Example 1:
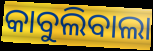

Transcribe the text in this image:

କାବୁଲିବାଲା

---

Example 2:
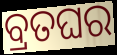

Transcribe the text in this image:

ବ୍ରତଘର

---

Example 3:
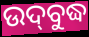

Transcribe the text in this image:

ଉଦ୍‍ବୁଦ୍ଧ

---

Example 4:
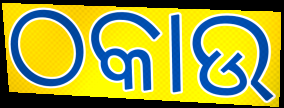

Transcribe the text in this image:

ଠକାଉ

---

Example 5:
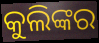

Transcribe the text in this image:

କୁଲିଙ୍କର